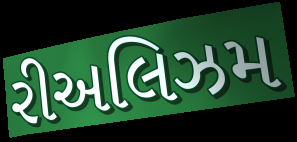
રીઅલિઝમ